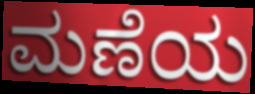
ಮಣೆಯ